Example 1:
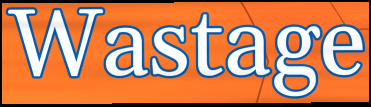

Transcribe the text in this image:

Wastage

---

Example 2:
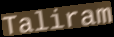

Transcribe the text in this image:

Taliram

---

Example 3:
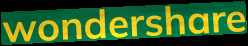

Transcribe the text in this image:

wondershare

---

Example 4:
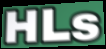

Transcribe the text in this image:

HLs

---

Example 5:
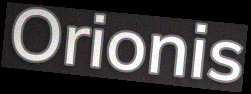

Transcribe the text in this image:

Orionis